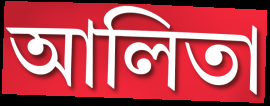
আলিতা